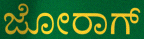
ಜೋರಾಗ್